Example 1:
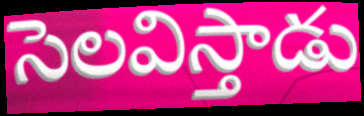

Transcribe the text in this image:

సెలవిస్తాడు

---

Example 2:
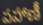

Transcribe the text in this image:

పహాణీ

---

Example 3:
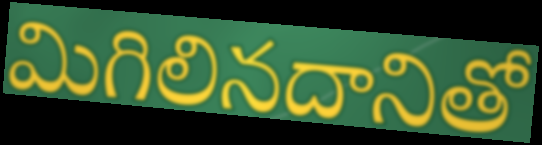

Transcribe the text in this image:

మిగిలినదానితో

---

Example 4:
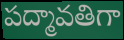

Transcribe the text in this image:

పద్మావతిగా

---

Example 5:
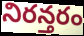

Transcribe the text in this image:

నిరన్తరం